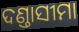
ଦଣ୍ଡାସୀମା